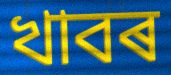
খাবৰ